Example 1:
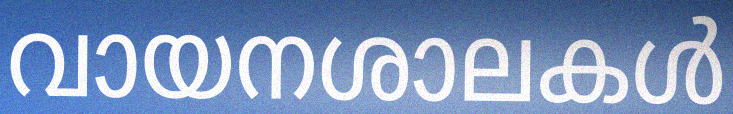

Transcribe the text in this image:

വായനശാലകൾ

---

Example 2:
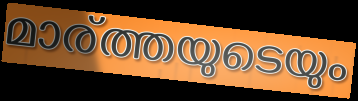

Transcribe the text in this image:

മാര്ത്തയുടെയും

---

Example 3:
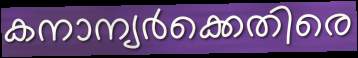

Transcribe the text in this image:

കനാന്യർക്കെതിരെ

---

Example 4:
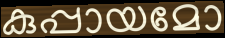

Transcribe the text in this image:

കുപ്പായമോ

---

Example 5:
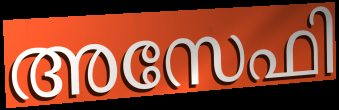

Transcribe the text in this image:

അസേഫി